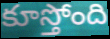
కూస్తోంది